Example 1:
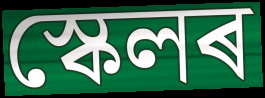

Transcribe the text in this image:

স্কেলৰ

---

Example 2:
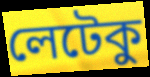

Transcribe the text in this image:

লেটেকু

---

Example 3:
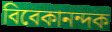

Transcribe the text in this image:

বিবেকানন্দক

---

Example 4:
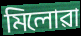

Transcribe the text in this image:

মিলোৱা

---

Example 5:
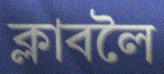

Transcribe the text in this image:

ক্লাবলৈ